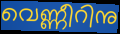
വെണ്ണീറിനു